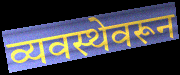
व्यवस्थेवरून